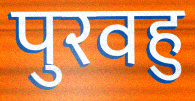
पुरवहु